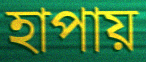
হাপায়